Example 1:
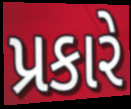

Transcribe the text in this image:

પ્રકારે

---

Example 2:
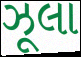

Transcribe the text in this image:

ઝૂલા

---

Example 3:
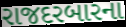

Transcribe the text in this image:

રાજદરબારના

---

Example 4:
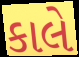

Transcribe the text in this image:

કાલે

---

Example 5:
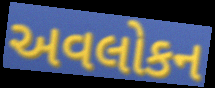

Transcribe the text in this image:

અવલોકન